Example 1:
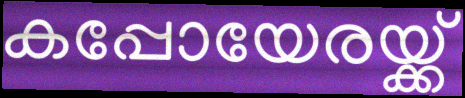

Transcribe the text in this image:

കപ്പോയേരയ്ക്ക്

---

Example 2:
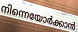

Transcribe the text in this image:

നിന്നെയോർക്കാൻ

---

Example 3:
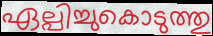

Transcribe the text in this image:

ഏല്പിച്ചുകൊടുത്തു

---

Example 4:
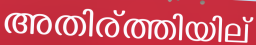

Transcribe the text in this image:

അതിര്ത്തിയില്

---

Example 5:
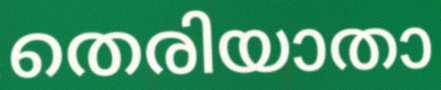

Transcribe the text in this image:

തെരിയാതാ